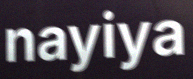
nayiya